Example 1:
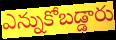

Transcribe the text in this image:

ఎన్నుకోబడ్డారు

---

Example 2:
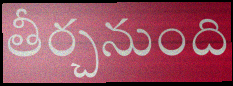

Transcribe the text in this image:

తీర్చనుంది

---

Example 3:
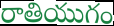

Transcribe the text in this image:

రాతియుగం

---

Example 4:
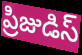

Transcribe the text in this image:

ప్రిజుడిస్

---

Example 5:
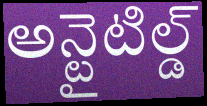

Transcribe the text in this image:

అన్టైటిల్డ్